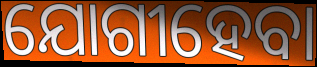
ଯୋଗୀହେବା